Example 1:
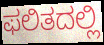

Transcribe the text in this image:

ಫಲಿತದಲ್ಲಿ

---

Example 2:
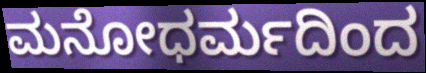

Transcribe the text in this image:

ಮನೋಧರ್ಮದಿಂದ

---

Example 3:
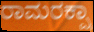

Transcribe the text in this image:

ರಾಮರಕ್ಷಾ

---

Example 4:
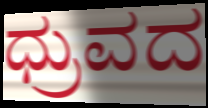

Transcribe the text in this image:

ಧ್ರುವದ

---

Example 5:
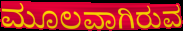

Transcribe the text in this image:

ಮೂಲವಾಗಿರುವ